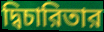
দ্বিচারিতার